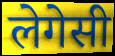
लेगेसी